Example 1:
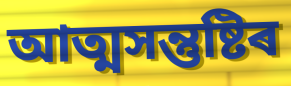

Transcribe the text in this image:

আত্মসন্তুষ্টিৰ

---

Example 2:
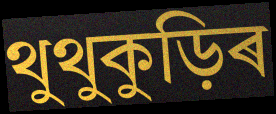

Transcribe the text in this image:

থুথুকুড়িৰ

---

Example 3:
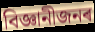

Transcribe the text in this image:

বিজ্ঞানীজনৰ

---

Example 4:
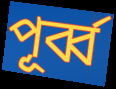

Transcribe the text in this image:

পূৰ্ব্ব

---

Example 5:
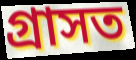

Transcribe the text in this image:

গ্ৰাসত